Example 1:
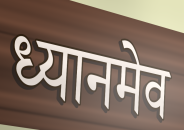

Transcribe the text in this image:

ध्यानमेव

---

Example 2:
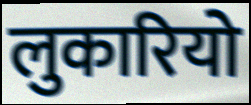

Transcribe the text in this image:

लुकारियो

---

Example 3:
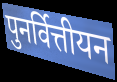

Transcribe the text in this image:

पुनर्वित्तीयन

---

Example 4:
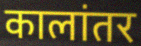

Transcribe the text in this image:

कालांतर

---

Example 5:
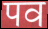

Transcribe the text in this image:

पव